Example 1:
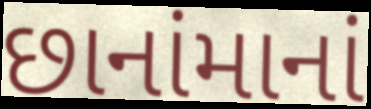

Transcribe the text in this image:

છાનાંમાનાં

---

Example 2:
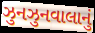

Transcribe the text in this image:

ઝુનઝુનવાલાનું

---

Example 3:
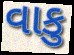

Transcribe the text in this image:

વાકુ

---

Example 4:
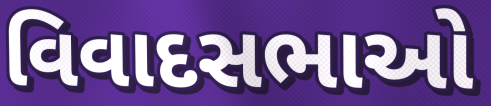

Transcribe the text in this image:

વિવાદસભાઓ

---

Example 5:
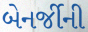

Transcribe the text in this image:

બેનર્જીની